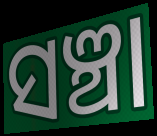
ସଞ୍ଚା